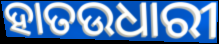
ହାତଉଧାରୀ